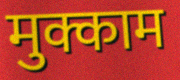
मुक्‍काम